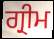
ਗ੍ਰੀਮ